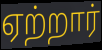
ஏற்றார்